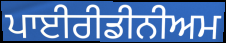
ਪਾਈਰੀਡੀਨੀਅਮ